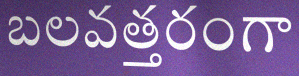
బలవత్తరంగా